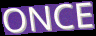
ONCE